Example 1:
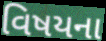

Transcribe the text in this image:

વિષયના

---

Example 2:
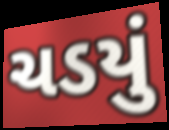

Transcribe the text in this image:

ચડયું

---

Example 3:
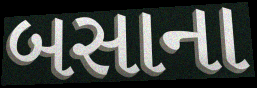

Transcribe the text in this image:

બસાના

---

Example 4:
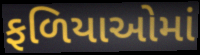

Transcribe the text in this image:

ફળિયાઓમાં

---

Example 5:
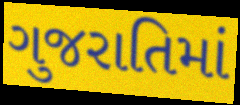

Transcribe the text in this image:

ગુજરાતિમાં